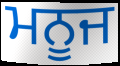
ਮਨੂਜ